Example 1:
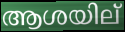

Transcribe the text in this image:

ആശയില്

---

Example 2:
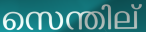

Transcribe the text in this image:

സെന്തില്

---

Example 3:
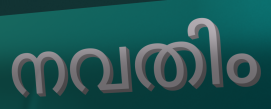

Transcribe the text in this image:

നവതിം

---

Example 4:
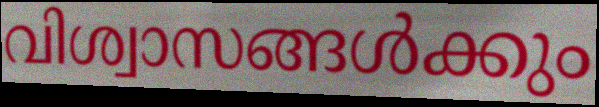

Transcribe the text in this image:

വിശ്വാസങ്ങൾക്കും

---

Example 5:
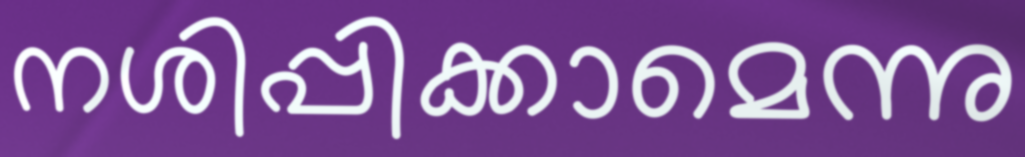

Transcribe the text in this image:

നശിപ്പിക്കാമെന്നു